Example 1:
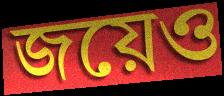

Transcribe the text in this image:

জয়েও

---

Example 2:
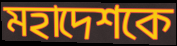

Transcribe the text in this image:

মহাদেশকে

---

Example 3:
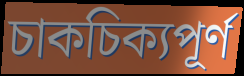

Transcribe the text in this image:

চাকচিক্যপূর্ণ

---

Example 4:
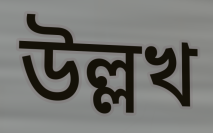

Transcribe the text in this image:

উল্লখ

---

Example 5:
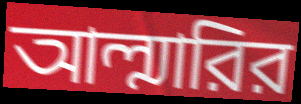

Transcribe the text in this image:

আল্মারির